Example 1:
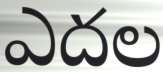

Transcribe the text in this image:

ఎదల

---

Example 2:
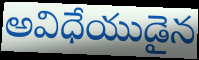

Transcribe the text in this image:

అవిధేయుడైన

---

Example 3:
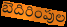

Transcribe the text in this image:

బెదిరింపుల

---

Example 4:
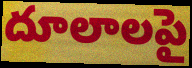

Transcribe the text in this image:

దూలాలపై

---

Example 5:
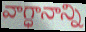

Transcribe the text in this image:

వాగ్ధానాన్ని